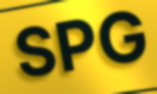
SPG